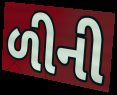
ળીની